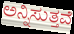
ಅನ್ನಿಸುತ್ತವೆ